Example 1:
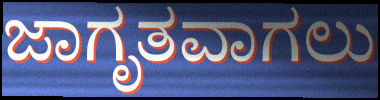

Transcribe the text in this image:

ಜಾಗೃತವಾಗಲು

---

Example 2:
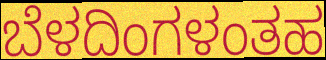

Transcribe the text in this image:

ಬೆಳದಿಂಗಳಂತಹ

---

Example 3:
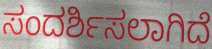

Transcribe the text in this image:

ಸಂದರ್ಶಿಸಲಾಗಿದೆ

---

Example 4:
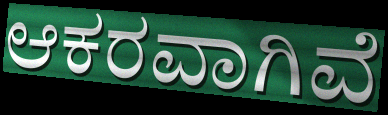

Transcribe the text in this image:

ಆಕರವಾಗಿವೆ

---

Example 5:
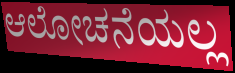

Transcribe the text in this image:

ಆಲೋಚನೆಯಲ್ಲ